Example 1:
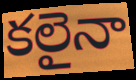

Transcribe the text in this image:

కలైనా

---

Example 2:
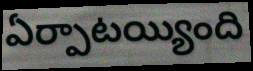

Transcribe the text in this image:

ఏర్పాటయ్యింది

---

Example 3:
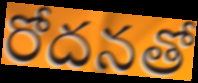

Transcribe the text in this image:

రోదనతో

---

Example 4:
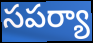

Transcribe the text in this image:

సపర్యా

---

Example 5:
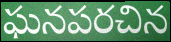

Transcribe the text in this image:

ఘనపరచిన